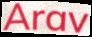
Arav